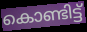
കൊണ്ടിട്ട്